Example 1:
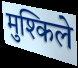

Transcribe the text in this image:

मुश्किले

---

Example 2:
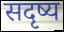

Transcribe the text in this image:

सदृष्य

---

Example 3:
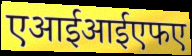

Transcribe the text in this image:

एआईआईएफए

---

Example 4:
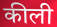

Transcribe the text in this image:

कीली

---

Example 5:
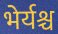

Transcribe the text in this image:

भेर्यश्च